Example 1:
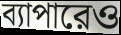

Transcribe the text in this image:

ব্যাপারেও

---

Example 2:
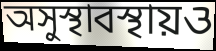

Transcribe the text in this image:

অসুস্থাবস্থায়ও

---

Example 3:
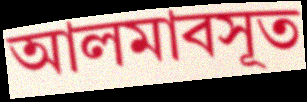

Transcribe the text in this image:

আলমাবসূত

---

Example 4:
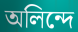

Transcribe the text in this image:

অলিন্দে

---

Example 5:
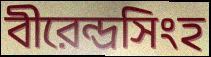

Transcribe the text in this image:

বীরেন্দ্রসিংহ